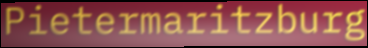
Pietermaritzburg